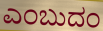
ಎಂಬುದಂ